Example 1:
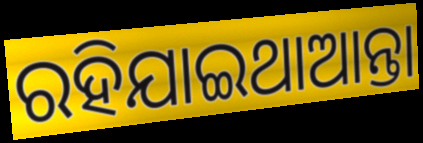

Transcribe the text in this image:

ରହିଯାଇଥାଆନ୍ତା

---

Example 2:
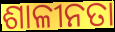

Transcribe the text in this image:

ଶାଳୀନତା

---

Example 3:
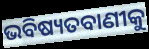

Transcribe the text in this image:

ଭବିଷ୍ୟତବାଣୀକୁ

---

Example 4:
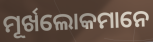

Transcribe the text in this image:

ମୂର୍ଖଲୋକମାନେ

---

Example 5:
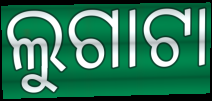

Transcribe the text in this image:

ଲୁଗାଟା